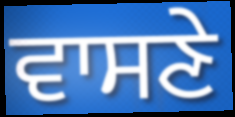
ਵਾਸਣੇ